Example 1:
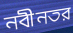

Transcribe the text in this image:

নবীনতর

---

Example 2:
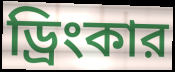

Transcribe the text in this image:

ড্রিংকার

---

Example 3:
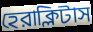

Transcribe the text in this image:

হেরাক্লিটাস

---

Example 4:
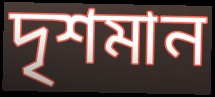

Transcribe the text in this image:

দৃশমান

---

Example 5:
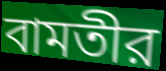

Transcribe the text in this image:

বামতীর